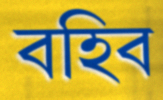
বহিব